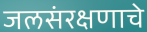
जलसंरक्षणाचे